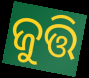
ଜୁତ୍ତି